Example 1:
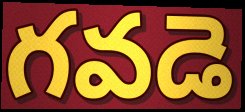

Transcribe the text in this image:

గవడె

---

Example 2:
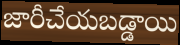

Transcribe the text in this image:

జారీచేయబడ్డాయి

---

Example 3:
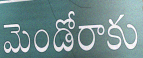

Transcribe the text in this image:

మెండోరాకు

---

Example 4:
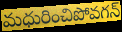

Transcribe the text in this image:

మధురించిపోవగన్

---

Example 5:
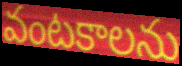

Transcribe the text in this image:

వంటకాలను